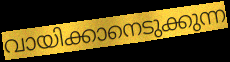
വായിക്കാനെടുക്കുന്ന